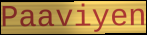
Paaviyen